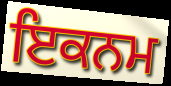
ਇਕਨਮ